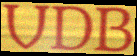
UDB